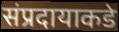
संप्रदायाकडे